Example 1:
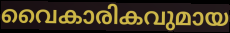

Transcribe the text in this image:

വൈകാരികവുമായ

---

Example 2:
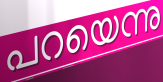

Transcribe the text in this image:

പറയെന്നു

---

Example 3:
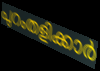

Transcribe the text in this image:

പുറംതളിക്കാർ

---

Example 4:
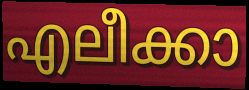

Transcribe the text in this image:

എലീക്കാ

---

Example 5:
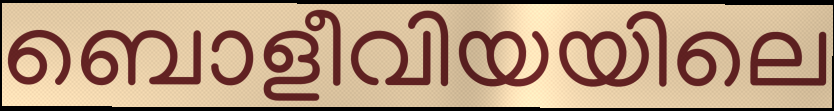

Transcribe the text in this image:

ബൊളീവിയയിലെ